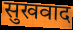
सुखवाद